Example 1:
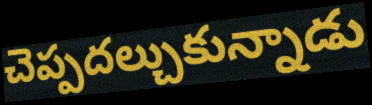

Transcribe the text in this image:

చెప్పదల్చుకున్నాడు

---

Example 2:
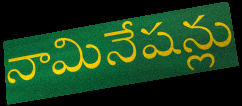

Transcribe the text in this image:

నామినేషన్లు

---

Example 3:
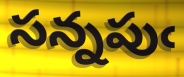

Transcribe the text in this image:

సన్నపుఁ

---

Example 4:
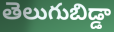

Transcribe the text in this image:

తెలుగుబిడ్డా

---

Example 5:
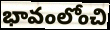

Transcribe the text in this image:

భావంలోంచి